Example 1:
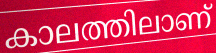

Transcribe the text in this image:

കാലത്തിലാണ്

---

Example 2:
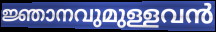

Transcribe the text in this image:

ജ്ഞാനവുമുള്ളവൻ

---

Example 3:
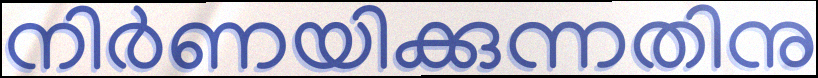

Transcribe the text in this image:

നിർണയിക്കുന്നതിനു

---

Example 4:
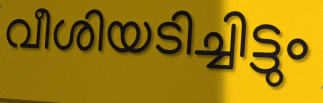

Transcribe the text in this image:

വീശിയടിച്ചിട്ടും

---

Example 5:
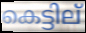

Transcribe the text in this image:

കെട്ടില്